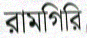
রামগিরি